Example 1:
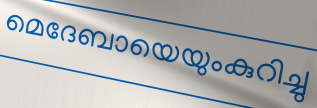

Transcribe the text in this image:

മെദേബായെയുംകുറിച്ചു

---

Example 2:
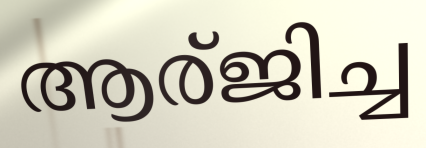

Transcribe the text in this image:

ആര്ജിച്ച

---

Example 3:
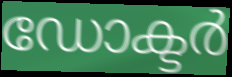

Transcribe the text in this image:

ഡോക്ടർ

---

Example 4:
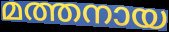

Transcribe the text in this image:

മത്തനായ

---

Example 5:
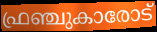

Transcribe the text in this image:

ഫ്രഞ്ചുകാരോട്